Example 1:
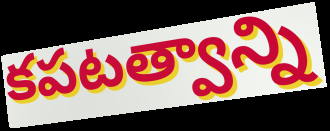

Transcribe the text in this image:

కపటత్వాన్ని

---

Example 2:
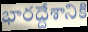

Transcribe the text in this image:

భారద్దేశానికి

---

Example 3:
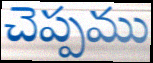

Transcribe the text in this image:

చెప్పము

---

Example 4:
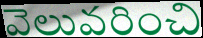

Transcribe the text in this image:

వెలువరించి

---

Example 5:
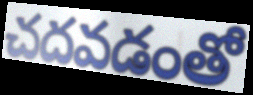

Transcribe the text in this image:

చదవడంతో